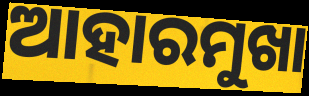
ଆହାରମୁଖା